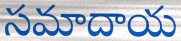
సమాదాయ